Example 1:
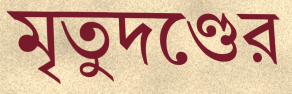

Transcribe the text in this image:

মৃতুদণ্ডের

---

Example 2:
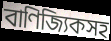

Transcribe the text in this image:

বাণিজ্যিকসহ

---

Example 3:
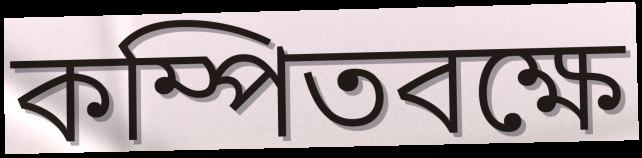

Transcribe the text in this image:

কম্পিতবক্ষে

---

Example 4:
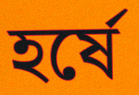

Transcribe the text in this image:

হর্ষে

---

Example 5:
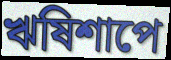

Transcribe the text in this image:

ঋষিশাপে